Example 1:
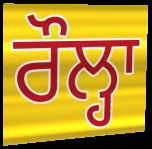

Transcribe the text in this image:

ਰੌਲ੍ਹਾ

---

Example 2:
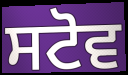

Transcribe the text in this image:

ਸਟੋਵ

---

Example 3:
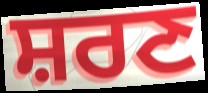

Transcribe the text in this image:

ਸ਼ਰਣ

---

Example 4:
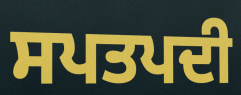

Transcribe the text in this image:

ਸਪਤਪਦੀ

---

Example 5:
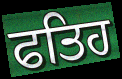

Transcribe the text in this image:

ਫਤਿਹ